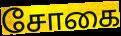
சோகை